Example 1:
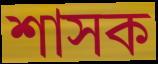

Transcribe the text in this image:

শাসক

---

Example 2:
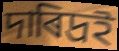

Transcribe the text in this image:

দাৰিদ্ৰই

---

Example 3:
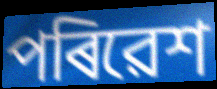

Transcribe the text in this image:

পৰিৱেশ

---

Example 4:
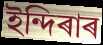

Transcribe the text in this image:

ইন্দিৰাৰ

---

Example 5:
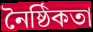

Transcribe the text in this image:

নৈষ্ঠিকতা